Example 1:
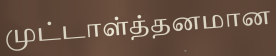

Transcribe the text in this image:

முட்டாள்த்தனமான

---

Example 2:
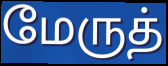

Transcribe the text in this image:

மேருத்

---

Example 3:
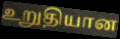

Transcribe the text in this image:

உறுதியான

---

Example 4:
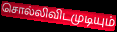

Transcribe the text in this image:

சொல்லிவிடமுடியும்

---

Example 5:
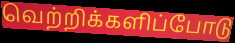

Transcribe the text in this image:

வெற்றிக்களிப்போடு